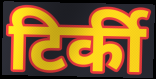
टिर्की